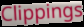
Clippings